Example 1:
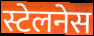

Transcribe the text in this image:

स्टेलनेस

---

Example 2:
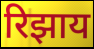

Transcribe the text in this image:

रिझाय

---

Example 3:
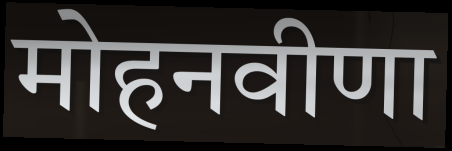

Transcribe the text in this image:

मोहनवीणा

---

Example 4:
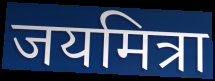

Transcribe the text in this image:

जयमित्रा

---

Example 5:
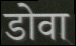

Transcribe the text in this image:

डोवा